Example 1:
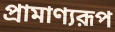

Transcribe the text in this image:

প্রামাণ্যরূপ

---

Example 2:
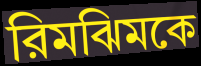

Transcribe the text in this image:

রিমঝিমকে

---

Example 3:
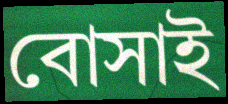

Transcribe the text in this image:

বোসাই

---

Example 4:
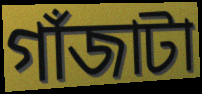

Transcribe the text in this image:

গাঁজাটা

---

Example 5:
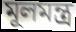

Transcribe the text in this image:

মূলমন্ত্র